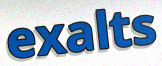
exalts